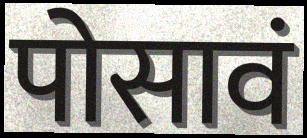
पोसावं